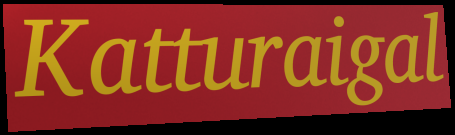
Katturaigal